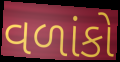
વળાંકો